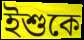
ইশুকে